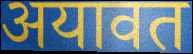
अयावत